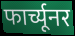
फार्च्यूनर